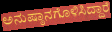
ಅನುಷ್ಠಾನಗೊಳಿಸಿದ್ದಾರೆ